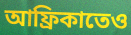
আফ্রিকাতেও